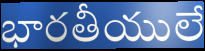
భారతీయులే